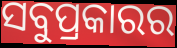
ସବୁପ୍ରକାରର